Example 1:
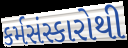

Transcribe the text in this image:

કર્મસંસ્કારોથી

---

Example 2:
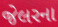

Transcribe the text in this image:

જેલરના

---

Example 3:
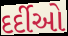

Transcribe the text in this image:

દર્દીઓ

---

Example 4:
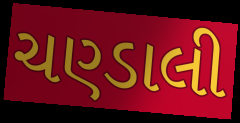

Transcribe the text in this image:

ચણ્ડાલી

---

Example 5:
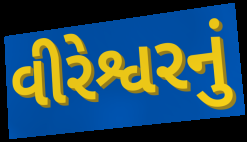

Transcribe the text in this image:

વીરેશ્વરનું